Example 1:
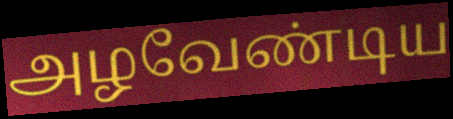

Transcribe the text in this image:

அழவேண்டிய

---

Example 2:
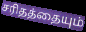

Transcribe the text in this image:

சரிதத்தையும்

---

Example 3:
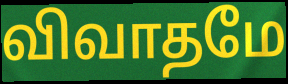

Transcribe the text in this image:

விவாதமே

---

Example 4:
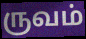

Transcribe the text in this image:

ருவம்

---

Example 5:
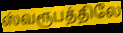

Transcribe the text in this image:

ஸ்வரூபத்திலே